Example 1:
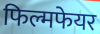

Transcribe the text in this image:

फिल्मफेयर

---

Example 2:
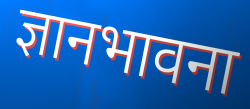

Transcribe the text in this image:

ज्ञानभावना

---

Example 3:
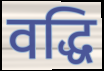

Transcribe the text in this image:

वद्धि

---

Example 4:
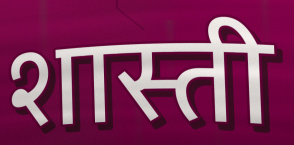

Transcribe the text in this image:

शास्ती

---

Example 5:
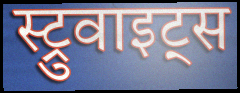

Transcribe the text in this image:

स्ट्रुवाइट्स